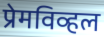
प्रेमविव्हल